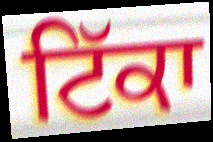
ਟਿੱਕਾ